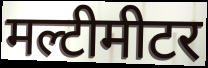
मल्टीमीटर